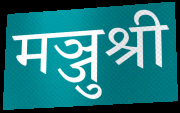
मञ्जुश्री